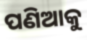
ପଣିଆକୁ